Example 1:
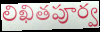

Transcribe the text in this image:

లిఖితపూర్వ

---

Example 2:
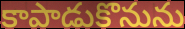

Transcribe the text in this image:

కాపాడుకొనును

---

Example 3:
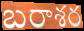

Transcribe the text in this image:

బరాశర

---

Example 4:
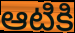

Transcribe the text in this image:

ఆటికి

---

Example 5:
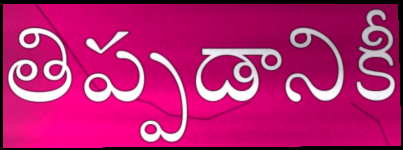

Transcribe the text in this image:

తిప్పడానికీ